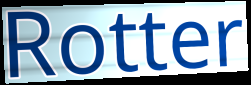
Rotter